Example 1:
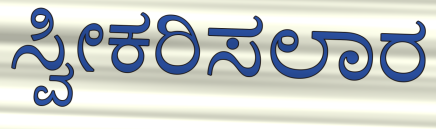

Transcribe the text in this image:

ಸ್ವೀಕರಿಸಲಾರ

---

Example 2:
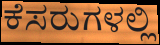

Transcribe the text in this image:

ಕೆಸರುಗಳಲ್ಲಿ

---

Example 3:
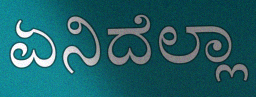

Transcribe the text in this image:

ಏನಿದೆಲ್ಲಾ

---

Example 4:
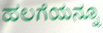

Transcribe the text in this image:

ಹಲಗೆಯನ್ನೂ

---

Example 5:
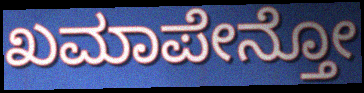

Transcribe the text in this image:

ಖಮಾಪೇನ್ತೋ